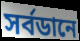
সর্বডানে